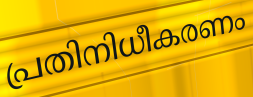
പ്രതിനിധീകരണം